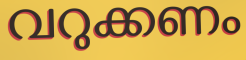
വറുക്കണം